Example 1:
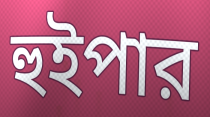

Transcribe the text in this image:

হুইপার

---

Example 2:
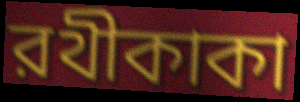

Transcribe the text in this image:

রথীকাকা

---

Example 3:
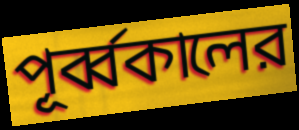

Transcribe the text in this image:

পূর্ব্বকালের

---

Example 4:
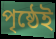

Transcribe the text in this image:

পৃষ্ঠেই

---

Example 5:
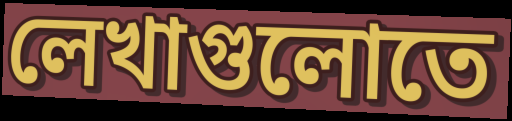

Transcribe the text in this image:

লেখাগুলোতে